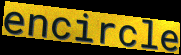
encircle